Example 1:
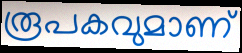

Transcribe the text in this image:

രൂപകവുമാണ്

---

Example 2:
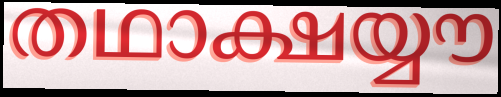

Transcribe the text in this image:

തഥാക്ഷയ്യൗ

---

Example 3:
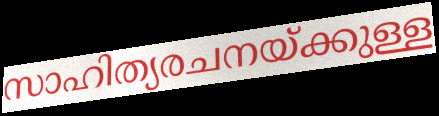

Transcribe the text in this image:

സാഹിത്യരചനയ്ക്കുള്ള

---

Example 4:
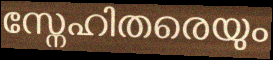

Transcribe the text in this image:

സ്നേഹിതരെയും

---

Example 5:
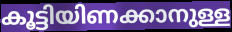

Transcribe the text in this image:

കൂട്ടിയിണക്കാനുള്ള